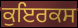
ਕੁਇਰਕਸ